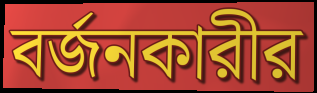
বর্জনকারীর